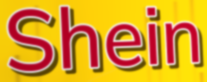
Shein